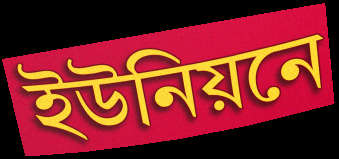
ইউনিয়নে